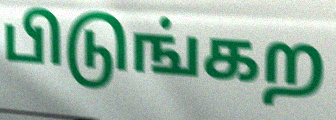
பிடுங்கற